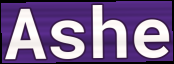
Ashe